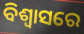
ବିଶ୍ବାସରେ